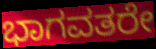
ಭಾಗವತರೇ